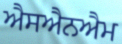
ਐਸਐਨਐਮ